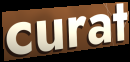
curat